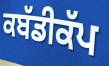
ਕਬੱਡੀਕੱਪ